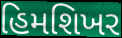
હિમશિખર